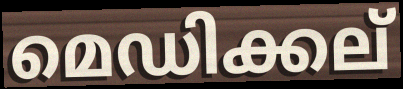
മെഡിക്കല്